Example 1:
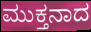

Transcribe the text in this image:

ಮುಕ್ತನಾದ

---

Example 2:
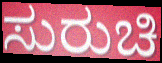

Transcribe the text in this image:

ಸುರುಚಿ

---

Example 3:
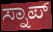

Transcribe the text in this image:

ಸ್ನಾಪ್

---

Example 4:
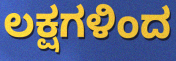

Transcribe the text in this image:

ಲಕ್ಷಗಳಿಂದ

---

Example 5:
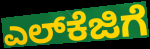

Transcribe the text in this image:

ಎಲ್‌ಕೆಜಿಗೆ